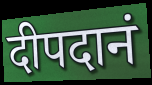
दीपदानं